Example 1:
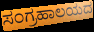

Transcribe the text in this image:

ಸಂಗ್ರಹಾಲಯದ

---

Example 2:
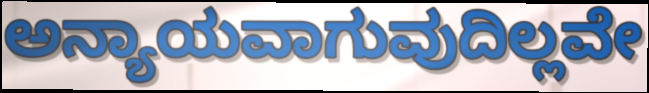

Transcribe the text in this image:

ಅನ್ಯಾಯವಾಗುವುದಿಲ್ಲವೇ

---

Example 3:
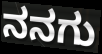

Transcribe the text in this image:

ನನಗು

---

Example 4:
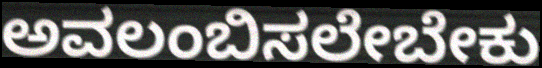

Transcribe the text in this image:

ಅವಲಂಬಿಸಲೇಬೇಕು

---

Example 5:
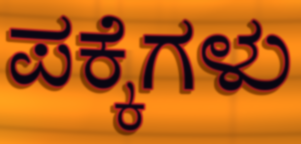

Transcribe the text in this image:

ಪಕ್ಕೆಗಳು